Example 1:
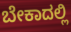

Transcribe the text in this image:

ಬೇಕಾದಲ್ಲಿ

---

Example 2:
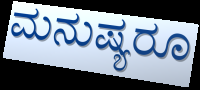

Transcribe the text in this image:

ಮನುಷ್ಯರೂ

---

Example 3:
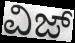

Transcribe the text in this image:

ವಿಜ್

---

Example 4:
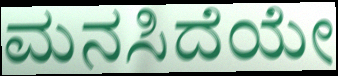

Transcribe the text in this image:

ಮನಸಿದೆಯೇ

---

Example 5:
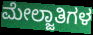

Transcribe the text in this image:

ಮೇಲ್ಜಾತಿಗಳ